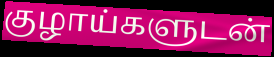
குழாய்களுடன்